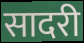
सादरी